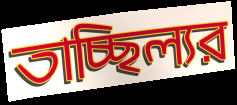
তাচ্ছিল্যর